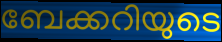
ബേക്കറിയുടെ